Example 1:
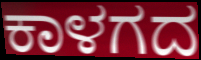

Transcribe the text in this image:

ಕಾಳಗದ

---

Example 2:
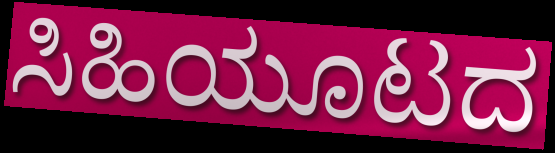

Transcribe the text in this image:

ಸಿಹಿಯೂಟದ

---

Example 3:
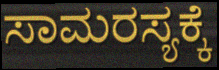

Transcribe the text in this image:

ಸಾಮರಸ್ಯಕ್ಕೆ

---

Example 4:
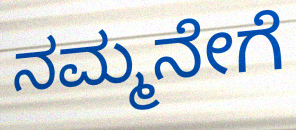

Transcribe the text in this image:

ನಮ್ಮನೇಗೆ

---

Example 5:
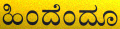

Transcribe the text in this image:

ಹಿಂದೆಂದೂ